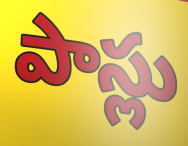
పాస్లు